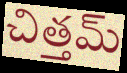
చిత్తమ్